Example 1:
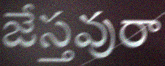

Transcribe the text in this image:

జేస్తవురా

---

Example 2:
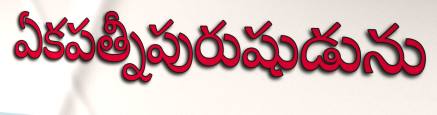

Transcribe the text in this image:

ఏకపత్నీపురుషుడును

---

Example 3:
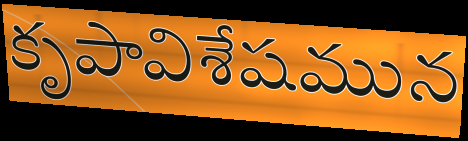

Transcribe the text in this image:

కృపావిశేషమున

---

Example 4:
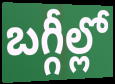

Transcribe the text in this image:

బగ్గీల్లో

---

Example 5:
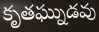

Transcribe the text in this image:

కృతఘ్నుడవు